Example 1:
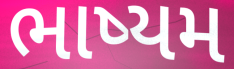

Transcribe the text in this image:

ભાષ્યમ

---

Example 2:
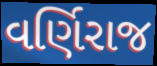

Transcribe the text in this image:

વર્ણિરાજ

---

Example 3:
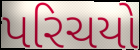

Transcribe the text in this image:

પરિચયો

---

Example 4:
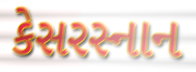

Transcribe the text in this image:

કેસરસ્નાન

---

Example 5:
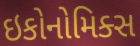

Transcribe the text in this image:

ઇકોનોમિક્સ